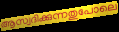
ആസ്വദിക്കുന്നതുപോലെ